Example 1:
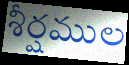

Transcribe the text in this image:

శీర్షముల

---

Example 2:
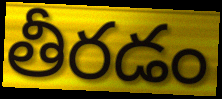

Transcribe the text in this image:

తీరడం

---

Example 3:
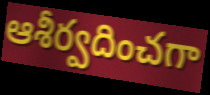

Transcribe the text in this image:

ఆశీర్వదించగా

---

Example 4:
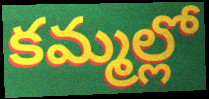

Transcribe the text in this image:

కమ్మల్లో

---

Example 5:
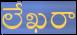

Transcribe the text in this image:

లేఖరా